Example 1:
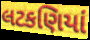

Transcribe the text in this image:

લટકણિયાં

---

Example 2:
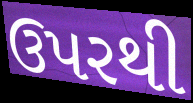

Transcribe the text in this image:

ઉપરથી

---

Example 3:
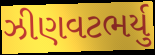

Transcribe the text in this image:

ઝીણવટભર્યુ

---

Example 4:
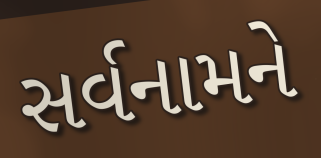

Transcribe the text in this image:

સર્વનામને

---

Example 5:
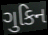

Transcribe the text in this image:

ગુકિન